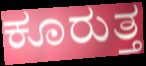
ಕೂರುತ್ತ